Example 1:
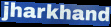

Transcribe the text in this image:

jharkhand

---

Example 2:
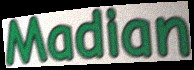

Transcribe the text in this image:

Madian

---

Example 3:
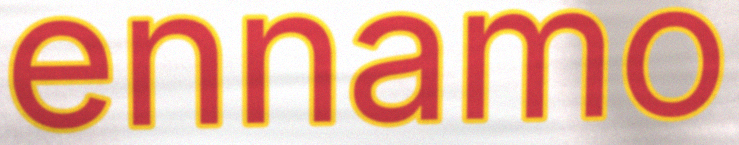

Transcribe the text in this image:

ennamo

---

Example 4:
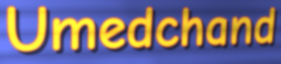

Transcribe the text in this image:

Umedchand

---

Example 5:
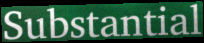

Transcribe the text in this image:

Substantial